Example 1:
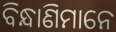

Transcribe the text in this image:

ବିନ୍ଧାଣିମାନେ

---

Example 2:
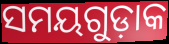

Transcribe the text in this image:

ସମୟଗୁଡ଼ାକ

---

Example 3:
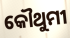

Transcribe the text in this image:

କୌଥୁମୀ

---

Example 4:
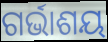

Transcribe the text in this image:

ଗର୍ଭାଶୟ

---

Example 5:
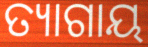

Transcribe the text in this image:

ତ୍ୟାଗାୟ